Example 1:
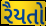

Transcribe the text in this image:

રૈયતો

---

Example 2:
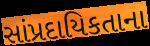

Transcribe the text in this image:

સાંપ્રદાયિકતાના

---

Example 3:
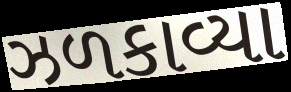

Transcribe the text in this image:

ઝળકાવ્યા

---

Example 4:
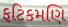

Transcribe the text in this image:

ફટિકમણિ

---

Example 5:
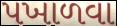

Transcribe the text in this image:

પખાળવા